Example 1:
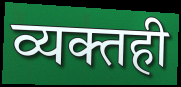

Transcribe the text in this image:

व्यक्तही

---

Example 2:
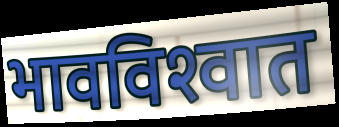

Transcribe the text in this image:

भावविश्वात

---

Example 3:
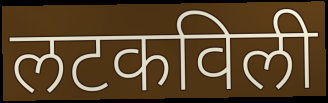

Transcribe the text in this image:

लटकविली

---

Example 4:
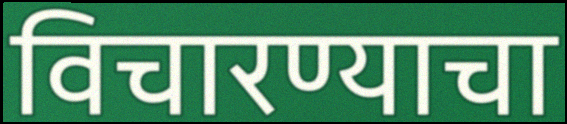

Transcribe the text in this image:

विचारण्याचा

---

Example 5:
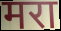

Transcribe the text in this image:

मरा